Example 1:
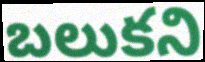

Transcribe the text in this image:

బలుకని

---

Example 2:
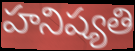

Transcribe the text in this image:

హనిష్యతి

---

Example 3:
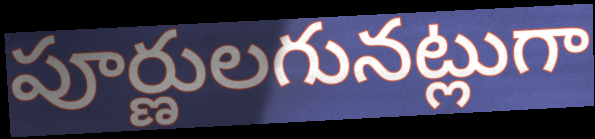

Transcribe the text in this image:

పూర్ణులగునట్లుగా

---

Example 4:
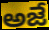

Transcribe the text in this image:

అజే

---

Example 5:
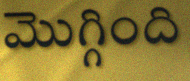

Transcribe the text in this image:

మొగ్గింది